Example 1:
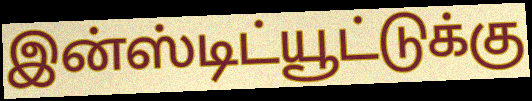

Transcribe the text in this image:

இன்ஸ்டிட்யூட்டுக்கு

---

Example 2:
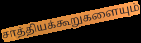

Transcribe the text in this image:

சாத்தியக்கூறுகளையும்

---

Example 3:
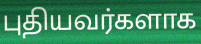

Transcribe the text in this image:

புதியவர்களாக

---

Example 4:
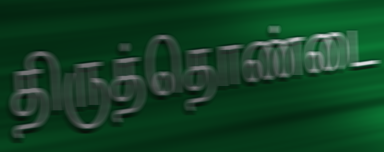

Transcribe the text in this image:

திருத்தொண்டை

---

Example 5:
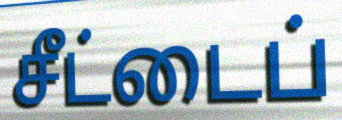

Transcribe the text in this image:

சீட்டைப்